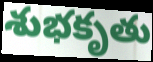
శుభకృతు